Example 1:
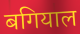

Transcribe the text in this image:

बगियाल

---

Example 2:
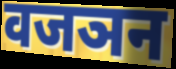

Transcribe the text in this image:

वजञन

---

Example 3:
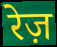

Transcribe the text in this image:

रेज़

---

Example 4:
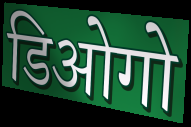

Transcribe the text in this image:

डिओगो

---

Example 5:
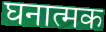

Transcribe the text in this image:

घनात्मक